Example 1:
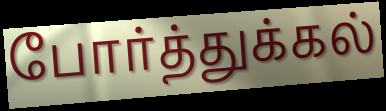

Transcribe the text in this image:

போர்த்துக்கல்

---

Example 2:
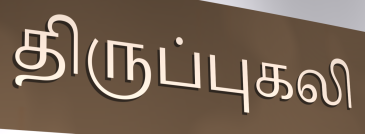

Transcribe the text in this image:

திருப்புகலி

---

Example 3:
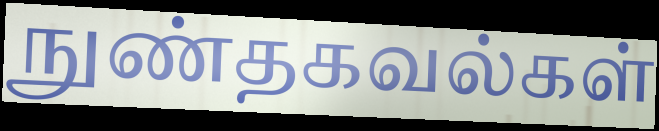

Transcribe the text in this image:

நுண்தகவல்கள்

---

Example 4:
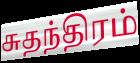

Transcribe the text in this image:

சுதந்திரம்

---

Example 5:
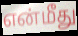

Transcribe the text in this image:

என்மீது